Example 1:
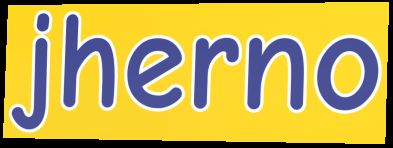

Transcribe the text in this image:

jherno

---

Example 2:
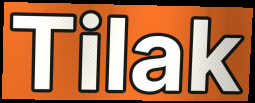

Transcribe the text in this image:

Tilak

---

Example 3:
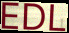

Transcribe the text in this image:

EDL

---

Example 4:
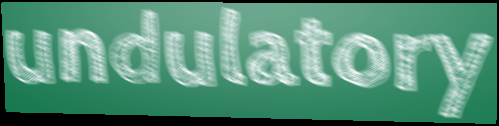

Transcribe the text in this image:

undulatory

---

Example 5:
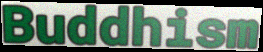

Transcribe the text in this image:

Buddhism